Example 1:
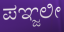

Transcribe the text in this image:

ಪಞ್ಜಲೀ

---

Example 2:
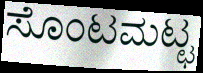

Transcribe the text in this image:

ಸೊಂಟಮಟ್ಟ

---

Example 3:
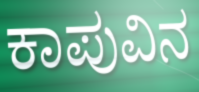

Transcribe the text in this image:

ಕಾಪುವಿನ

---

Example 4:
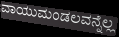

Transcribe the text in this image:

ವಾಯುಮಂಡಲವನ್ನೆಲ್ಲ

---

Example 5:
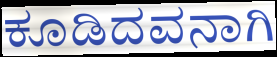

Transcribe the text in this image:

ಕೂಡಿದವನಾಗಿ